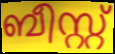
ബീസ്റ്റ്